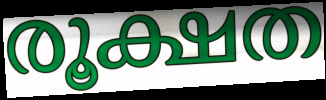
രൂക്ഷത